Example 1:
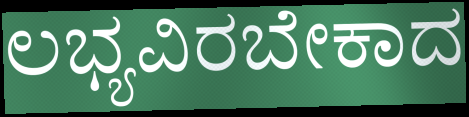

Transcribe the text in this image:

ಲಭ್ಯವಿರಬೇಕಾದ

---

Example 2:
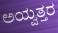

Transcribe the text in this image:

ಅಯ್ವತ್ತರ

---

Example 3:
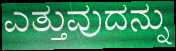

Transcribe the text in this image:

ಎತ್ತುವುದನ್ನು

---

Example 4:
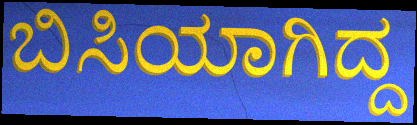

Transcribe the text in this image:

ಬಿಸಿಯಾಗಿದ್ದ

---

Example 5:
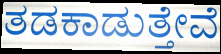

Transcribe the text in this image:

ತಡಕಾಡುತ್ತೇವೆ